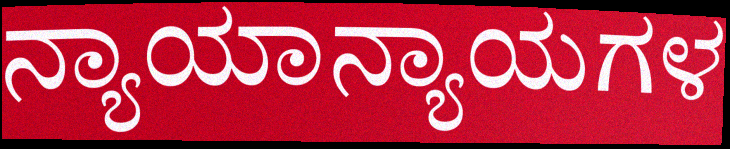
ನ್ಯಾಯಾನ್ಯಾಯಗಳ